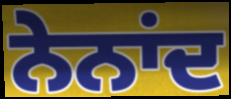
ਨੇਨਾਂਦ